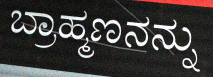
ಬ್ರಾಹ್ಮಣನನ್ನು